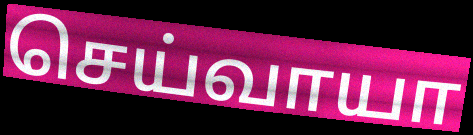
செய்வாயா